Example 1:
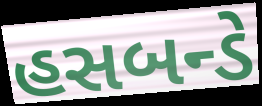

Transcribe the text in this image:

હસબન્ડે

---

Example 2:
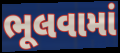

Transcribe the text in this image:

ભૂલવામાં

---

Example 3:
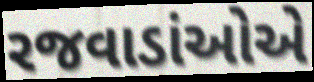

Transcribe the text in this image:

રજવાડાંઓએ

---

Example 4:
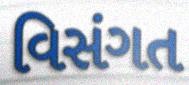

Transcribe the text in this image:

વિસંગત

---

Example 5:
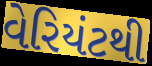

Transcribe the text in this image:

વેરિયંટથી